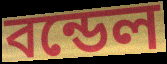
বন্ডেল